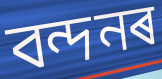
বন্দনৰ